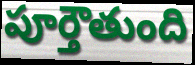
పూర్తౌతుంది